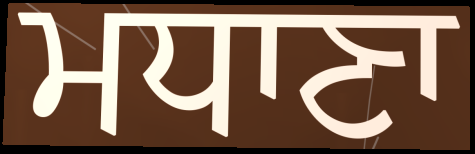
ਮਧਾਣਾ